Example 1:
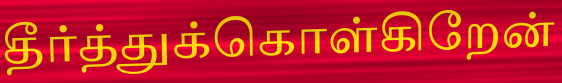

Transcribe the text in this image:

தீர்த்துக்கொள்கிறேன்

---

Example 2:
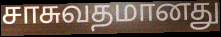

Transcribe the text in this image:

சாசுவதமானது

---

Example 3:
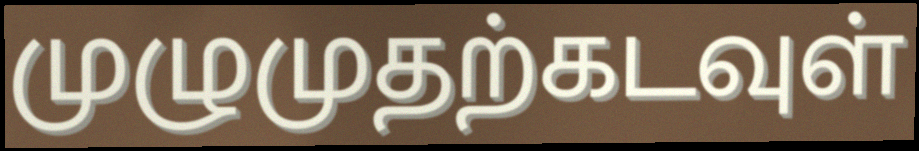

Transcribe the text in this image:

முழுமுதற்கடவுள்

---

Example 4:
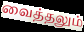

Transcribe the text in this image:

வைத்தலும்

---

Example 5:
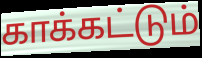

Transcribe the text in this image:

காக்கட்டும்